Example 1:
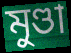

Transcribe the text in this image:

মুণ্ডা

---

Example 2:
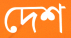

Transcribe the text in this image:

দেশ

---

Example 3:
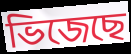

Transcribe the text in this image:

ভিজেছে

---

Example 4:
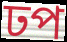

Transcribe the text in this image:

ঢপ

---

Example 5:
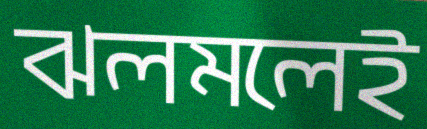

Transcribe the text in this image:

ঝলমলেই